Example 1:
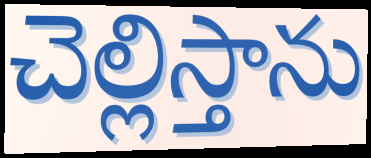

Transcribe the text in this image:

చెల్లిస్తాను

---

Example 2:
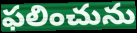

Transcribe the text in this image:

ఫలించును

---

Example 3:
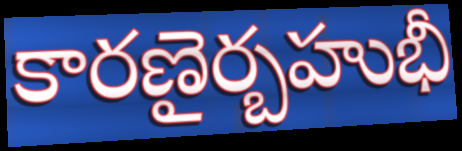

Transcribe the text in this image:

కారణైర్బహుభీ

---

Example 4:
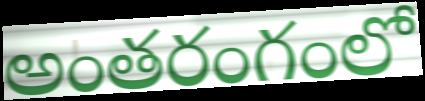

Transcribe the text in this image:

అంతరంగంలో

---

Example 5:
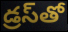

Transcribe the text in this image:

డ్రస్‌తో